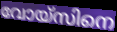
വോയ്സിനെ